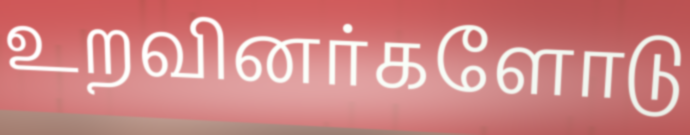
உறவினர்களோடு